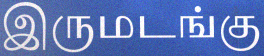
இருமடங்கு